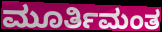
ಮೂರ್ತಿಮಂತ